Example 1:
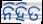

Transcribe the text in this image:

ନିହିତ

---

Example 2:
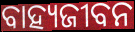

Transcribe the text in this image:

ବାହ୍ୟଜୀବନ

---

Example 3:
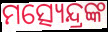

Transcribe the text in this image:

ମତ୍ସ୍ୟେନ୍ଦ୍ରଙ୍କ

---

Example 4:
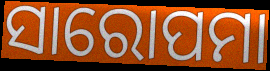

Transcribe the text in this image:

ସାରୋପମା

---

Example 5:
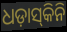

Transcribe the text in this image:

ଧଡ଼ାସ୍‌କିନି